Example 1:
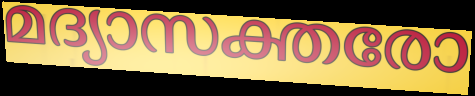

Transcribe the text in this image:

മദ്യാസക്തരോ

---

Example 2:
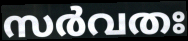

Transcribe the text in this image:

സർവതഃ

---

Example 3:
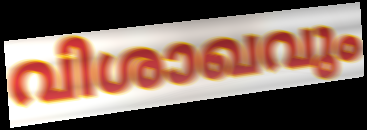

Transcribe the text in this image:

വിശാഖവും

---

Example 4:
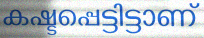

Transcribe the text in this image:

കഷ്ടപ്പെട്ടിട്ടാണ്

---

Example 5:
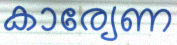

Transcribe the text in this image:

കാര്യേണ